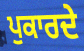
ਪੁਕਾਰਦੇ